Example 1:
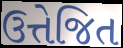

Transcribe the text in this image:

ઉત્તેજિત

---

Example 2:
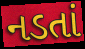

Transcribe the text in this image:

નડતાં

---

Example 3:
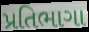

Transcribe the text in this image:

પ્રતિભાગા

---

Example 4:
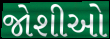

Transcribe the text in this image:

જોશીઓ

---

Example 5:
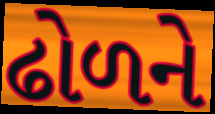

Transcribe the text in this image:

ઢોળને